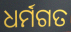
ଧର୍ମଗତ